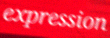
expression